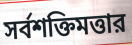
সর্বশক্তিমত্তার